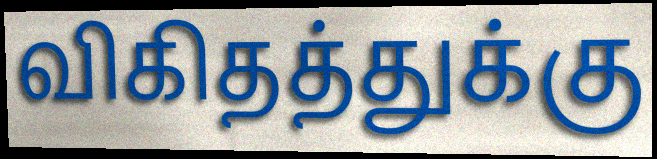
விகிதத்துக்கு